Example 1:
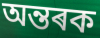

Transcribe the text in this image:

অন্তৰক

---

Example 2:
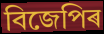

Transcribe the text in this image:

বিজেপিৰ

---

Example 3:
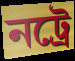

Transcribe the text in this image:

নট্ৰে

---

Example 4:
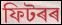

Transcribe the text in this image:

ফিটৰৰ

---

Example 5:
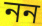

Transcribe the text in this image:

নন